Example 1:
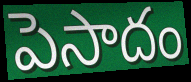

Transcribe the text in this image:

పెసాదం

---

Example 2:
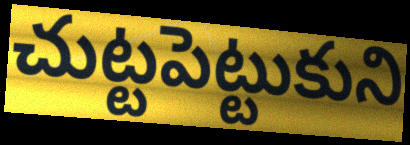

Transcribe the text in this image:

చుట్టపెట్టుకుని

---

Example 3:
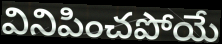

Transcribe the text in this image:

వినిపించపోయే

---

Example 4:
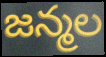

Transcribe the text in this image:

జన్మల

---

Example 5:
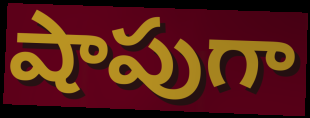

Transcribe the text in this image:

షాపుగా